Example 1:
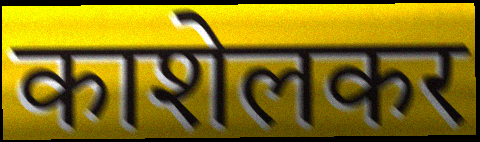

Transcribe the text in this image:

काशेलकर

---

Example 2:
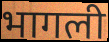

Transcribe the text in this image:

भागली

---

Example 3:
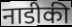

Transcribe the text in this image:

नाडीकी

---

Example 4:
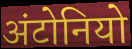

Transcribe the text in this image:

अंटोनियो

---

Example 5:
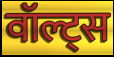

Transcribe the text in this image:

वॉल्ट्स